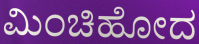
ಮಿಂಚಿಹೋದ